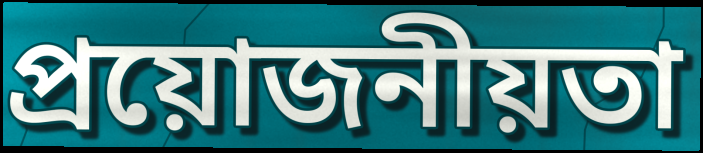
প্ৰয়োজনীয়তা